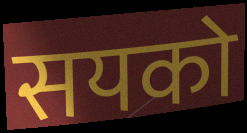
सयको